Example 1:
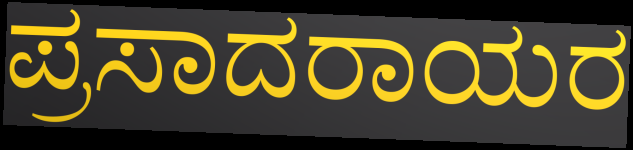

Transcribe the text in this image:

ಪ್ರಸಾದರಾಯರ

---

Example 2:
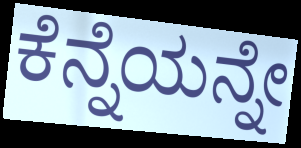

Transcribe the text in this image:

ಕೆನ್ನೆಯನ್ನೇ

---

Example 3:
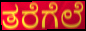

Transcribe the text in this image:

ತರೆಗೆಲೆ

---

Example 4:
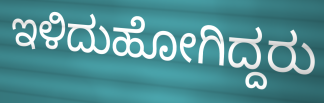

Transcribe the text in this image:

ಇಳಿದುಹೋಗಿದ್ದರು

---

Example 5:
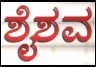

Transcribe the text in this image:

ಶೈಶವ